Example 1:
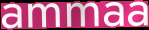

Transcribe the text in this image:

ammaa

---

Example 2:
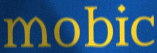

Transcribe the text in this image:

mobic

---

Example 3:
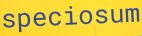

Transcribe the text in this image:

speciosum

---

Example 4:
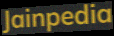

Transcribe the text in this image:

Jainpedia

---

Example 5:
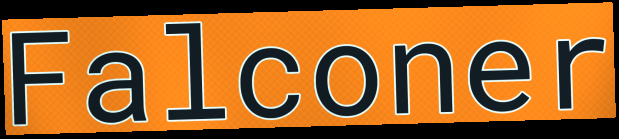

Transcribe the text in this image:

Falconer